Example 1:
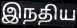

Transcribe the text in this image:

இநதிய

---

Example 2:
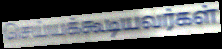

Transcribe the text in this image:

செய்யக்கூடியவர்கள்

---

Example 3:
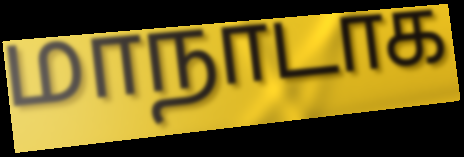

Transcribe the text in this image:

மாநாடாக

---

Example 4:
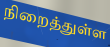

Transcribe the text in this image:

நிறைத்துள்ள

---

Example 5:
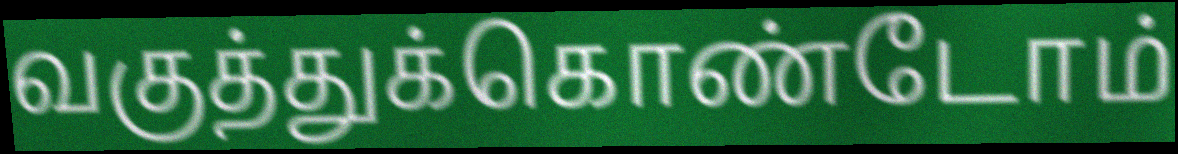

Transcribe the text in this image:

வகுத்துக்கொண்டோம்